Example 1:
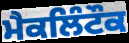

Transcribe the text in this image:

ਮੈਕਲਿੰਟੌਕ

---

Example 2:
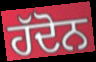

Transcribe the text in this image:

ਹੱਦੋਨ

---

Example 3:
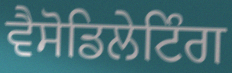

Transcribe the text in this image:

ਵੈਸੋਡਿਲੇਟਿੰਗ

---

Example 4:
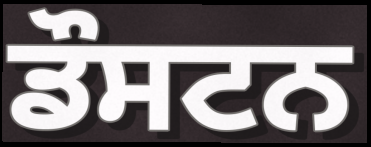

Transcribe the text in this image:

ਡੌਸਟਨ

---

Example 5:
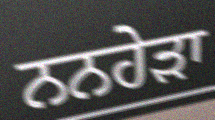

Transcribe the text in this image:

ਨਨਹੇੜਾ